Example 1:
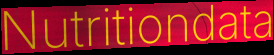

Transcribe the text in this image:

Nutritiondata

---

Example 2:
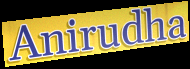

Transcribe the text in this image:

Anirudha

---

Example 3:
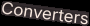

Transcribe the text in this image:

Converters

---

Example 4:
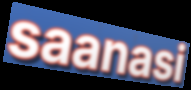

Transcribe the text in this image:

saanasi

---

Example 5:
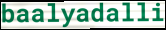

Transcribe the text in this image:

baalyadalli